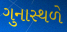
ગુનાસ્થળે